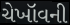
ચેખૉવની